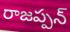
రాజప్పన్